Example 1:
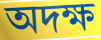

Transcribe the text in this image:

অদক্ষ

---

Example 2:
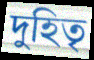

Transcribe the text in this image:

দুহিতৃ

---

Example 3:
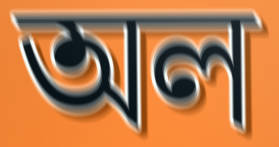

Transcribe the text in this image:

অল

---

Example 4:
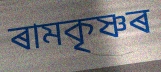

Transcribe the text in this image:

ৰামকৃষ্ণৰ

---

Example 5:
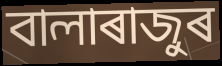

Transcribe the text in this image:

বালাৰাজুৰ